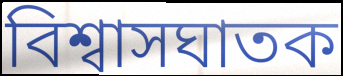
বিশ্বাসঘাতক